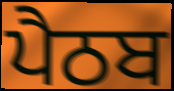
ਪੈਠਬ